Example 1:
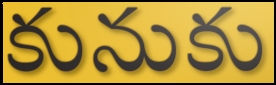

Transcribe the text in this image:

కునుకు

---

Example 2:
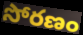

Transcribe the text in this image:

సోరణం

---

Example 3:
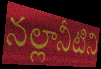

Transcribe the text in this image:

నల్లానీటిని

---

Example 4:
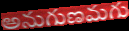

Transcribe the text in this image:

అనుగుణమగు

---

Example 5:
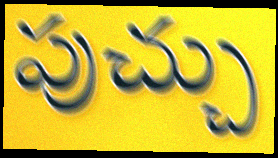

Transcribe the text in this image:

పుచ్చు